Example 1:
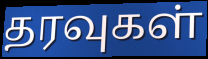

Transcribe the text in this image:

தரவுகள்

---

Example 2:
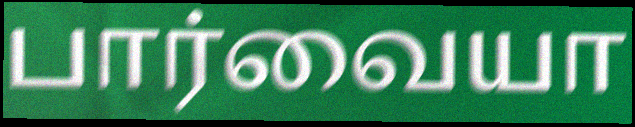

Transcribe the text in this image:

பார்வையா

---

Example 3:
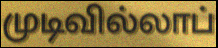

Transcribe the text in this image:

முடிவில்லாப்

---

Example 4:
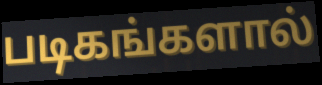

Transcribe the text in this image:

படிகங்களால்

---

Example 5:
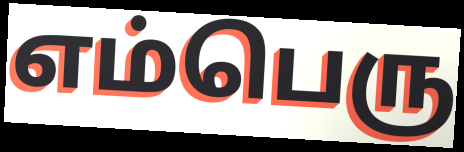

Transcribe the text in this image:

எம்பெரு